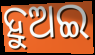
ହୁଅଇ